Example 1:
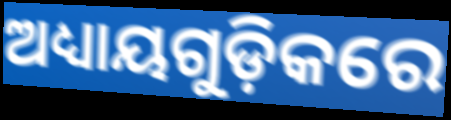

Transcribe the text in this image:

ଅଧ୍ୟାୟଗୁଡ଼ିକରେ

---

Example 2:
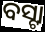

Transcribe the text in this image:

ବସ୍ଟା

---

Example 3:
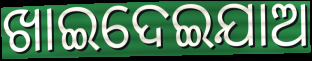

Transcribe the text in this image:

ଖାଇଦେଇଯାଅ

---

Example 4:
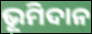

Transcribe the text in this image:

ଭୂମିଦାନ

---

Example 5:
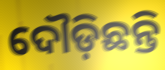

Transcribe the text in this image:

ଦୌଡ଼ିଛନ୍ତି